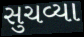
સુચવ્યા